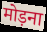
मोड़ना